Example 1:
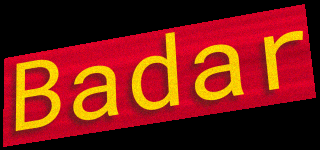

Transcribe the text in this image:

Badar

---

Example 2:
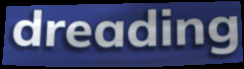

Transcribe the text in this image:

dreading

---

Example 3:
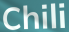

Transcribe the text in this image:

Chili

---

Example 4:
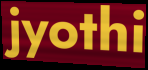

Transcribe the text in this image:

jyothi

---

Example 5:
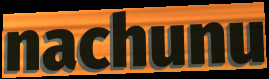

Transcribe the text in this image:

nachunu